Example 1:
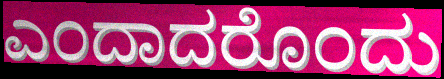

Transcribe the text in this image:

ಎಂದಾದರೊಂದು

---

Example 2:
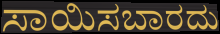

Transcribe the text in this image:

ಸಾಯಿಸಬಾರದು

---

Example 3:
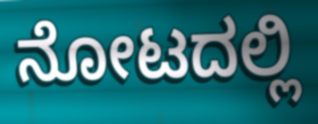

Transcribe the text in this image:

ನೋಟದಲ್ಲಿ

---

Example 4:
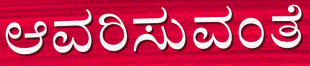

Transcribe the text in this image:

ಆವರಿಸುವಂತೆ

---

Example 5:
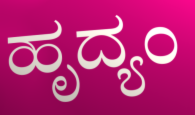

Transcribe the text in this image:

ಹೃದ್ಯಂ